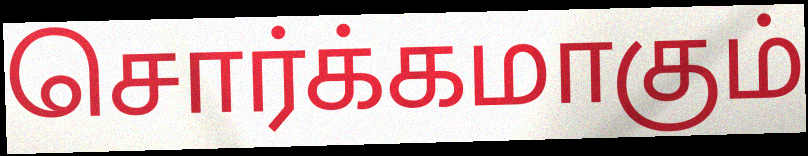
சொர்க்கமாகும்